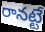
రానట్టే